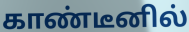
காண்டீனில்